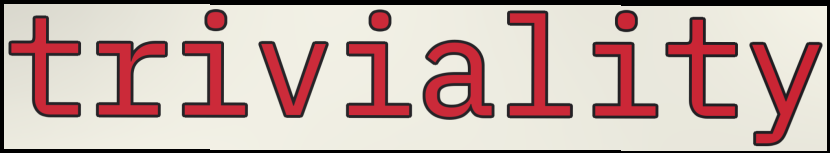
triviality